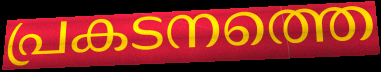
പ്രകടനത്തെ